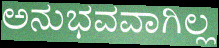
ಅನುಭವವಾಗಿಲ್ಲ